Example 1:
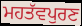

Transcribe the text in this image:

ਮਹਤੱਵਪੁਰਣ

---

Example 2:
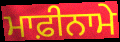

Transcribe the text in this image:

ਮਾਫ਼ੀਨਾਮੇ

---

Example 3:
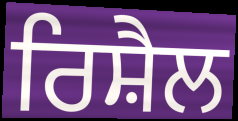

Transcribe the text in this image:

ਰਿਸ਼ੈਲ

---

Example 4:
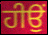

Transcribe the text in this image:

ਹੀਉਂ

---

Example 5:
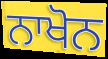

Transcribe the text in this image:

ਨਾਖੋਨ